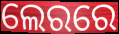
ଲେରରେ